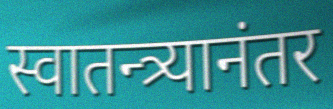
स्वातन्त्र्यानंतर